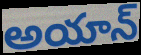
అయాన్